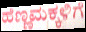
ಹೆಣ್ಣಮಕ್ಕಳಿಗೆ